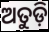
ଅତୁଡ଼ି